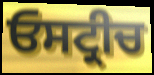
ਓਸਟ੍ਰੀਚ